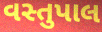
વસ્તુપાલ